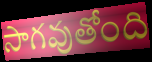
సాగవుతోంది